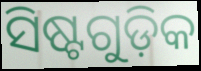
ସିଷ୍ଟଗୁଡ଼ିକ